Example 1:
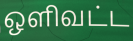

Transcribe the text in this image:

ஒளிவட்ட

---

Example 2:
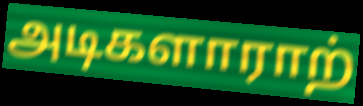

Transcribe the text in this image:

அடிகளாராற்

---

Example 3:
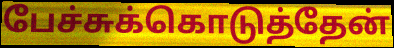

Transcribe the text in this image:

பேச்சுக்கொடுத்தேன்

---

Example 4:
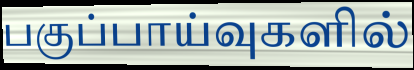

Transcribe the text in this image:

பகுப்பாய்வுகளில்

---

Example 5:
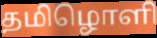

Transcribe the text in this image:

தமிழொளி